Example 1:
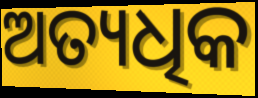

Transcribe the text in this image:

ଅତ୍ୟଧିକ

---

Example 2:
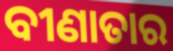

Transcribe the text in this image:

ବୀଣାତାର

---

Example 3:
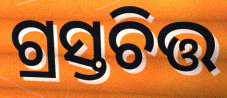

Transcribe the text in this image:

ଗ୍ରସ୍ତଚିତ୍ତ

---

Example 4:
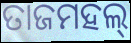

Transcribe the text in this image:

ତାଜମହଲ୍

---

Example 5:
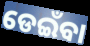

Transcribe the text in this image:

ଡେଇଁବା